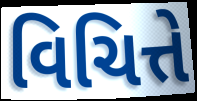
વિચિત્તે